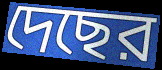
দেছের